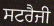
ਸਟਰੈਜੀ